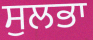
ਸੁਲਭਾ